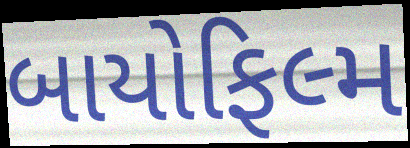
બાયોફિલ્મ